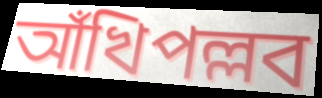
আঁখিপল্লব